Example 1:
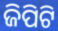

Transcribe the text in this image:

ଜିପିଟି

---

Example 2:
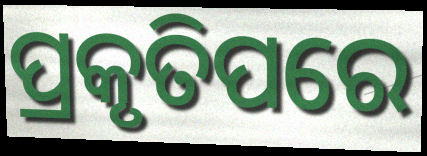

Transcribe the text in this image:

ପ୍ରକୃତିପରେ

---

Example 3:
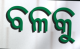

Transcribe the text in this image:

ବଳକୁ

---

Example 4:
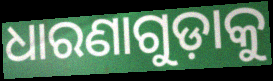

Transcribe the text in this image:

ଧାରଣାଗୁଡ଼ାକୁ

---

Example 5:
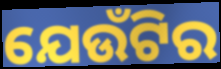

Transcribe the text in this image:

ଯେଉଁଟିର